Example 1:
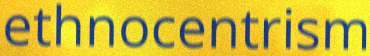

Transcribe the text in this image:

ethnocentrism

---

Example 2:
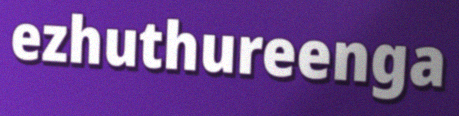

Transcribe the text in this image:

ezhuthureenga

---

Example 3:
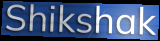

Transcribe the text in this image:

Shikshak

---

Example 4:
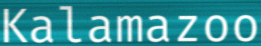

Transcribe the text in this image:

Kalamazoo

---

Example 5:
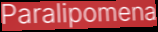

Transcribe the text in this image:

Paralipomena